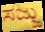
ಸಜ್ಜು